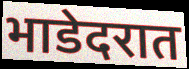
भाडेदरात